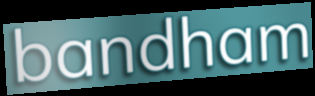
bandham